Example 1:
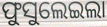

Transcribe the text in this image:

ଫୁସୁଲେଇଲା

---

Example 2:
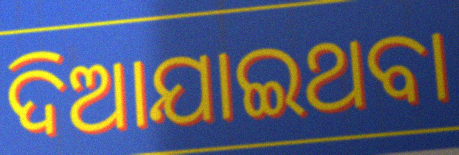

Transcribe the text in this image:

ଦିଆଯାଇଥବା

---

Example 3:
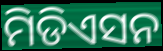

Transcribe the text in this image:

ମିଡିଏସନ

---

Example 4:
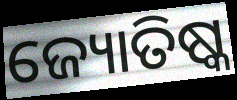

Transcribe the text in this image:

ଜ୍ୟୋତିଷ୍କ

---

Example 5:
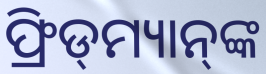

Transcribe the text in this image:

ଫ୍ରିଡ୍‌ମ୍ୟାନ୍‌ଙ୍କ